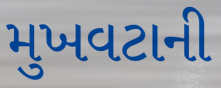
મુખવટાની